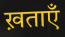
ख़ताएँ